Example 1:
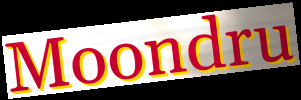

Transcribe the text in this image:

Moondru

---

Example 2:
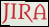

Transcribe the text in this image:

JIRA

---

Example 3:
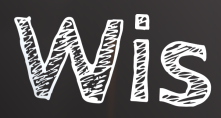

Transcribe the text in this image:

Wis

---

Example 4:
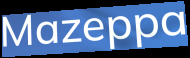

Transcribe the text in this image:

Mazeppa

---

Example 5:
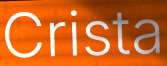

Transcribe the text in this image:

Crista